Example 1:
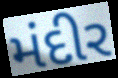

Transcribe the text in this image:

મંદીર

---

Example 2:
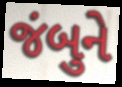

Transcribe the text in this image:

જંબુને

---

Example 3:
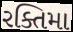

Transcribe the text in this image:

રક્તિમા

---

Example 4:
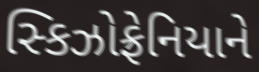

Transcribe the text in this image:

સ્કિઝોફ્રેનિયાને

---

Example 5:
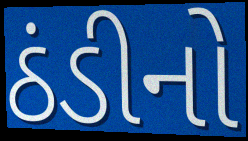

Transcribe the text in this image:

ઠંડીનો